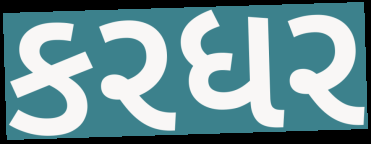
કરધર